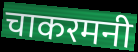
चाकरमनी